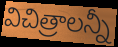
విచిత్రాలన్నీ